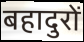
बहादुरों